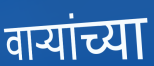
वाऱ्यांच्या